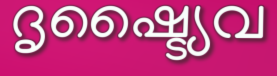
ദൃഷ്ട്യൈവ